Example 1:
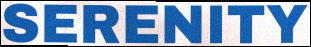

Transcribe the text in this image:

SERENITY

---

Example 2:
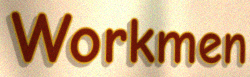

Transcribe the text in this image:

Workmen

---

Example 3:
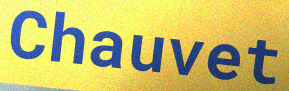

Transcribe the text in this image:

Chauvet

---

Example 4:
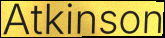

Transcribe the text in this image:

Atkinson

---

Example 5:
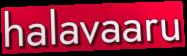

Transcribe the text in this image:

halavaaru